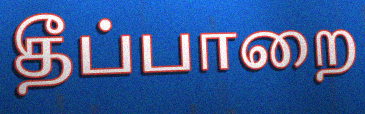
தீப்பாறை